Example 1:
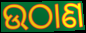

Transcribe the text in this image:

ଉଠାଣ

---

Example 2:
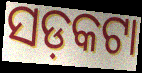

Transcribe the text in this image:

ସଡ଼କଟା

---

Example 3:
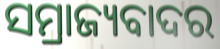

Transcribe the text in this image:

ସମ୍ରାଜ୍ୟବାଦର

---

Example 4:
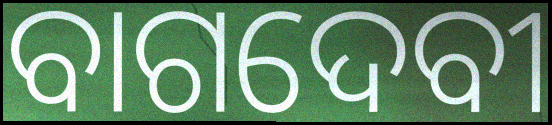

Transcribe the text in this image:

ବାଗଦେବୀ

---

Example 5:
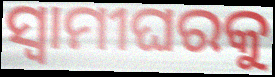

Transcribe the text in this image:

ସ୍ୱାମୀଘରକୁ